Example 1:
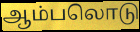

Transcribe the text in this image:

ஆம்பலொடு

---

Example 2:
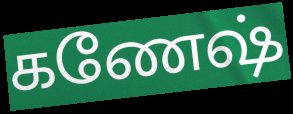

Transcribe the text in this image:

கணேஷ்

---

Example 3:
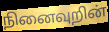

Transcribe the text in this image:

நினைவுறின்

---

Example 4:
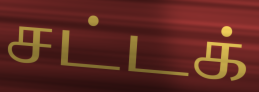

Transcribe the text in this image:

சட்டக்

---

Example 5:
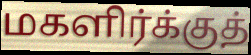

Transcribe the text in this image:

மகளிர்க்குத்